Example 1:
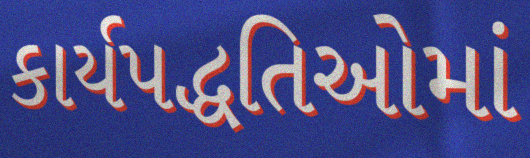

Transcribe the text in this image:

કાર્યપદ્ધતિઓમાં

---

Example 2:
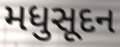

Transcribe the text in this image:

મધુસૂદન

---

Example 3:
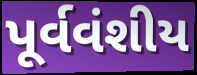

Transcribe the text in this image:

પૂર્વવંશીય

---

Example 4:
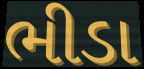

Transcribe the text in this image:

ભીડા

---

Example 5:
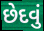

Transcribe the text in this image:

છેદવું